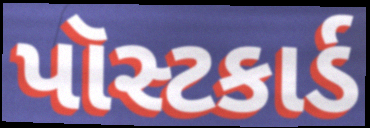
પૉસ્ટકાર્ડ